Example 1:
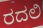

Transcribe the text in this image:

ರದಲಿ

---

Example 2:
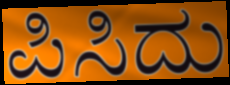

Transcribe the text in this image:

ಪಿಸಿದು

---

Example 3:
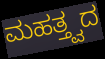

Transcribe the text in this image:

ಮಹತ್ತ್ವದ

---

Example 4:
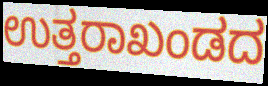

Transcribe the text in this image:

ಉತ್ತರಾಖಂಡದ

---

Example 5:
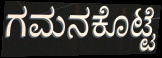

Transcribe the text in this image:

ಗಮನಕೊಟ್ಟೆ